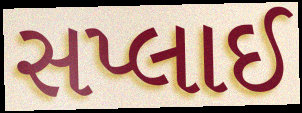
સપ્લાઈ